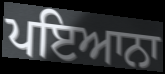
ਪਇਆਨਾ